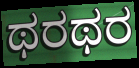
ಥರಥರ